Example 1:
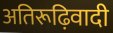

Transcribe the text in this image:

अतिरूढ़िवादी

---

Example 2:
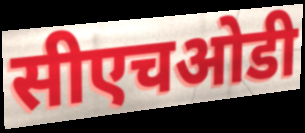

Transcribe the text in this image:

सीएचओडी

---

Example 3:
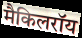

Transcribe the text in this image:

मैकिलरॉय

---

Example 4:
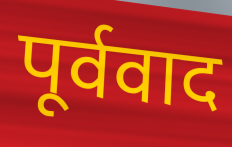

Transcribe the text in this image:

पूर्ववाद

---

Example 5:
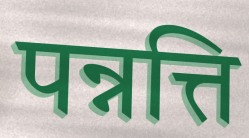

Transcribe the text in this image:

पन्नत्ति